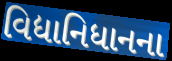
વિદ્યાનિધાનના